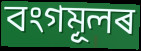
বংগমূলৰ